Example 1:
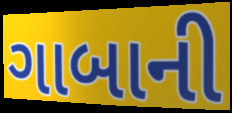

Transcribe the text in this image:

ગાબાની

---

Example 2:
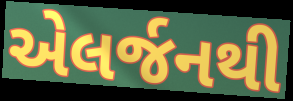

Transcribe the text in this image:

એલર્જનથી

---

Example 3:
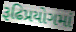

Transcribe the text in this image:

રૂઢિપ્રયોગમાં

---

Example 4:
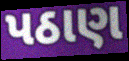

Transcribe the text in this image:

પઠાણ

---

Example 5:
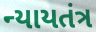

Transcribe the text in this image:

ન્યાયતંત્ર